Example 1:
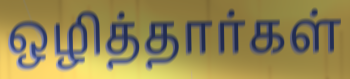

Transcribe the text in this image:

ஒழித்தார்கள்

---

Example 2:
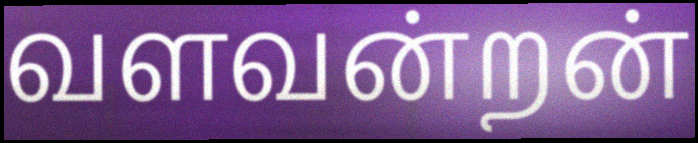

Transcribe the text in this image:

வளவன்றன்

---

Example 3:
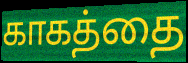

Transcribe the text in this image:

காகத்தை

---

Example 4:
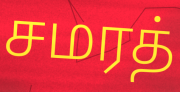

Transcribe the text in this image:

சமரத்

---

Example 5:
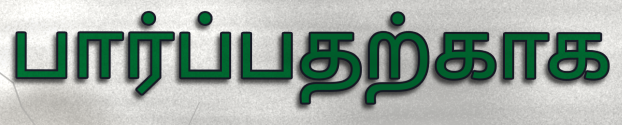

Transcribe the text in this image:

பார்ப்பதற்காக